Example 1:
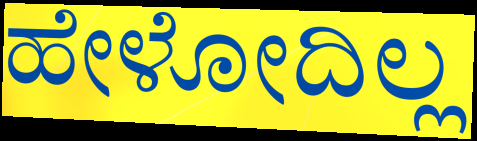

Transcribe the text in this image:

ಹೇಳೋದಿಲ್ಲ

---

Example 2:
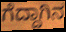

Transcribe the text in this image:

ಗೆದ್ದಾಗಿನ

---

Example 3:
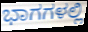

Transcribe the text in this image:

ಭಾಗಗಳಲ್ಲಿ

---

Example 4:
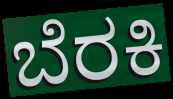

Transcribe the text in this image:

ಬೆರಕಿ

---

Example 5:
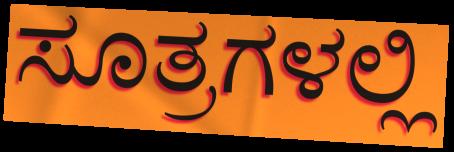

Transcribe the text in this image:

ಸೂತ್ರಗಳಲ್ಲಿ